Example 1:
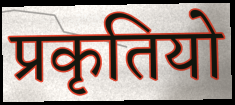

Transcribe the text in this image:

प्रकृतियो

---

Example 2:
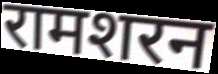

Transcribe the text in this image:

रामशरन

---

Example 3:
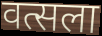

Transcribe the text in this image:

वत्सला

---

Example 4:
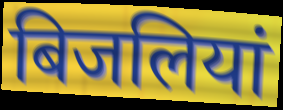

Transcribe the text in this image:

बिजलियां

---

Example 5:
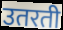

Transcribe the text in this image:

उतरती